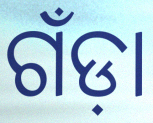
ଗଁଡ଼ା